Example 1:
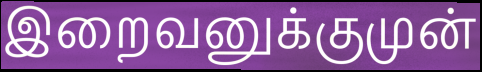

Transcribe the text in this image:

இறைவனுக்குமுன்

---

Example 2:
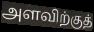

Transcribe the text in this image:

அளவிற்குத்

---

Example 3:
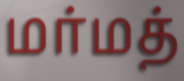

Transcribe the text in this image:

மர்மத்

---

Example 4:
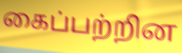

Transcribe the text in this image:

கைப்பற்றின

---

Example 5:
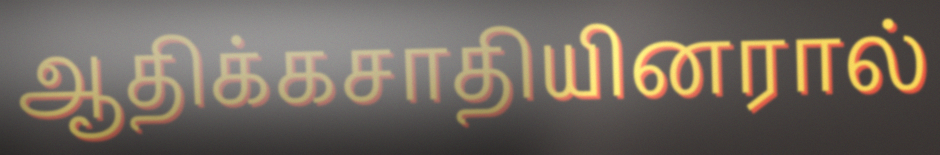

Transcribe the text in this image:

ஆதிக்கசாதியினரால்